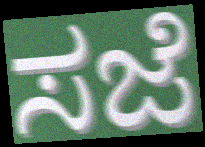
ಸಜೆ